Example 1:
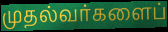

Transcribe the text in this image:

முதல்வர்களைப்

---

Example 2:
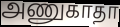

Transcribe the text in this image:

அணுகாதா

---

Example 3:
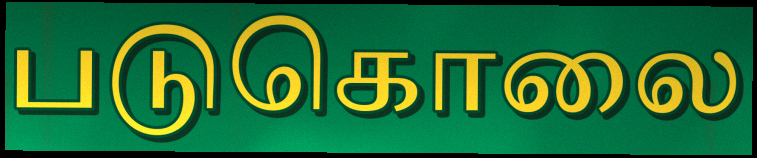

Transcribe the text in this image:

படுகொலை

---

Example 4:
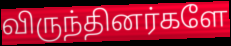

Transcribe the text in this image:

விருந்தினர்களே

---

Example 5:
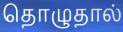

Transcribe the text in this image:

தொழுதால்